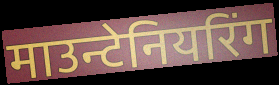
माउन्टेनियरिंग